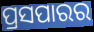
ପ୍ରସପାରର